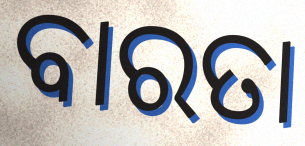
ବାରତା